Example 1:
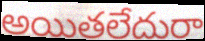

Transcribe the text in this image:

అయితలేదురా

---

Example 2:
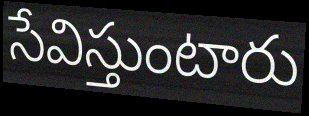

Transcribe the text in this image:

సేవిస్తుంటారు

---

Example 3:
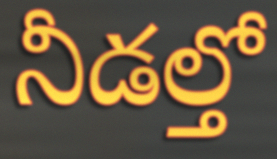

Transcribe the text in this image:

నీడల్తో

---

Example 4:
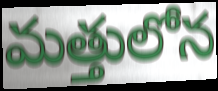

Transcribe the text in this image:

మత్తులోన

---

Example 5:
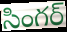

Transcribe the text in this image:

సింగర్